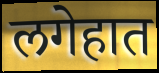
लगेहात